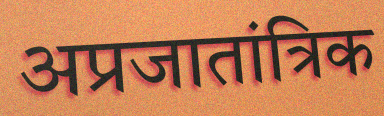
अप्रजातांत्रिक